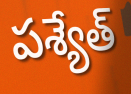
పశ్యేత్